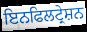
ਇਨਫਿਲਟ੍ਰੇਸ਼ਨ